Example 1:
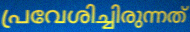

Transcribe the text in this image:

പ്രവേശിച്ചിരുന്നത്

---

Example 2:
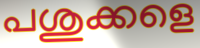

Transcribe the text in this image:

പശുക്കളെ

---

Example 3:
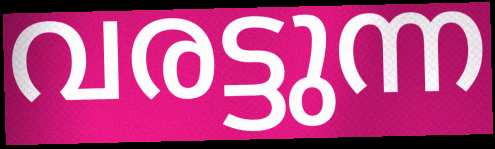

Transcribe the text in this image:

വരട്ടുന്ന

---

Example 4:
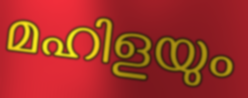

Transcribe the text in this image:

മഹിളയും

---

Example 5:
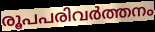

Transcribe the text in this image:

രൂപപരിവർത്തനം